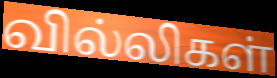
வில்லிகள்